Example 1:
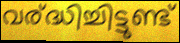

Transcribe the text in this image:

വര്ദ്ധിച്ചിട്ടുണ്ട്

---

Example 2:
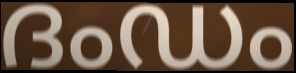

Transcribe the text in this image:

ദംഡം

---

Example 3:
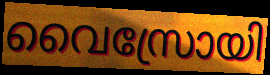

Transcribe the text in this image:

വൈസ്രോയി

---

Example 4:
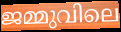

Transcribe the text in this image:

ജമ്മുവിലെ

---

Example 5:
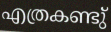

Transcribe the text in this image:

എത്രകണ്ടു്